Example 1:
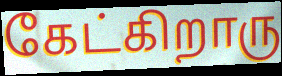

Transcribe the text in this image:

கேட்கிறாரு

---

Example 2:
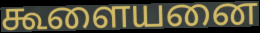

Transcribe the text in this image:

கூளையனை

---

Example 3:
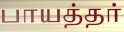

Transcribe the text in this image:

பாயத்தர்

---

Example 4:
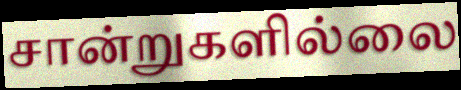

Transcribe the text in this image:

சான்றுகளில்லை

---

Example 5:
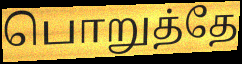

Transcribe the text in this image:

பொறுத்தே